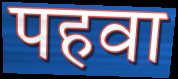
पहवा